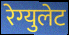
रेग्‍युलेट